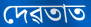
দেৱতাত